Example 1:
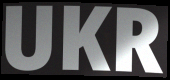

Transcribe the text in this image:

UKR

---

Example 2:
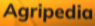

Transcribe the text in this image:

Agripedia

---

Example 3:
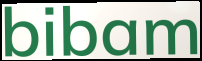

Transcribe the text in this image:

bibam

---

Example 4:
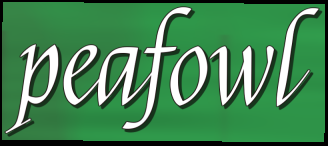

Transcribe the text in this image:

peafowl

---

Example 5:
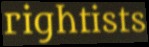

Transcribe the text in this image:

rightists